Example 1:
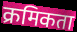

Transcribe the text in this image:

क्रमिकता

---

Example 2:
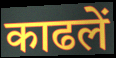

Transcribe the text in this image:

काढलें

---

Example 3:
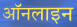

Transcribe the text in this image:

ऑनलाइन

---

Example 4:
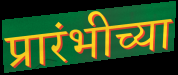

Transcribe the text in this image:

प्रारंभीच्या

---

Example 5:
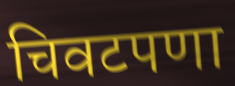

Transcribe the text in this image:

चिवटपणा